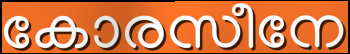
കോരസീനേ